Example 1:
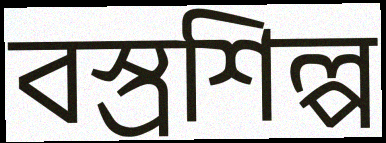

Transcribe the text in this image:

বস্ত্রশিল্প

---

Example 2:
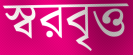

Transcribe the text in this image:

স্বরবৃত্ত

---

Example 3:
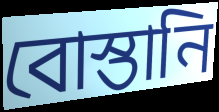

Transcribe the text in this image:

বোস্তানি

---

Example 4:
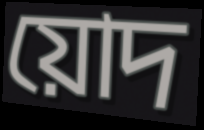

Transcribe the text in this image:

য়োদ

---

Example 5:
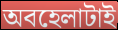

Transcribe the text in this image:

অবহেলাটাই